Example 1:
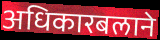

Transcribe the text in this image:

अधिकारबलाने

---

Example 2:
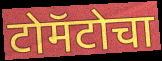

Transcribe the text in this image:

टोमॅटोचा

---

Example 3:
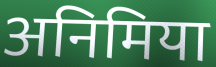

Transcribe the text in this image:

अनिमिया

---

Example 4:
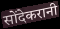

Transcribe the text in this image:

सोंदेकरानी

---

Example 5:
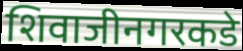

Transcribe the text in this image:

शिवाजीनगरकडे